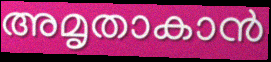
അമൃതാകാൻ